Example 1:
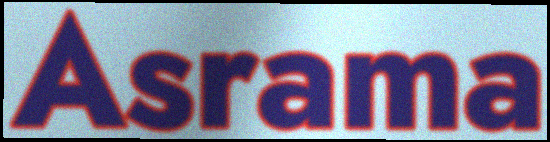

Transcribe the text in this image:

Asrama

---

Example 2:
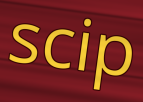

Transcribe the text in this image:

scip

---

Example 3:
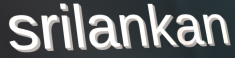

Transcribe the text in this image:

srilankan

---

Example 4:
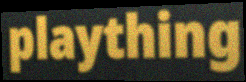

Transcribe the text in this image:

plaything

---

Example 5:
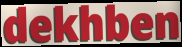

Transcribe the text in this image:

dekhben